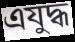
এযুদ্ধ